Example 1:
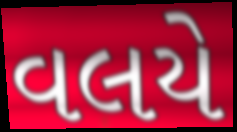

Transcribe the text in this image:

વલયે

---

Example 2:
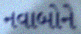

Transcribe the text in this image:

નવાબોને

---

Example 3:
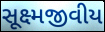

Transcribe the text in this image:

સૂક્ષ્મજીવીય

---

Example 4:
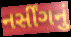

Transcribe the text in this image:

નર્સીંગનું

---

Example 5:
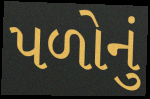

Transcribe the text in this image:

પળોનું